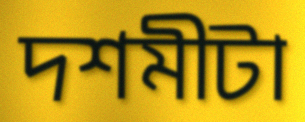
দশমীটা